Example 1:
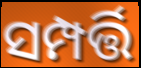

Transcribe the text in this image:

ସମ୍ପର୍ତ୍ତି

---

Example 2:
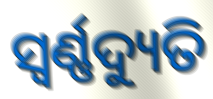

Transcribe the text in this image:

ସ୍ୱର୍ଣ୍ଣଦ୍ୟୁତି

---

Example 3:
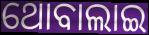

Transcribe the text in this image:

ଥୋବାଲାଇ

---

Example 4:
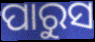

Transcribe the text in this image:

ପାରୁସ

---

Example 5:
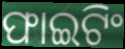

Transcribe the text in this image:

ଫାଇଟିଂ